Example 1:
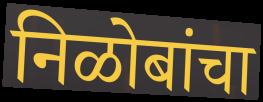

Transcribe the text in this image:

निळोबांचा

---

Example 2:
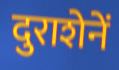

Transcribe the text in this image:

दुराशेनें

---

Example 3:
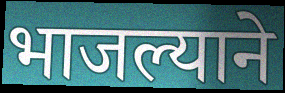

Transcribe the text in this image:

भाजल्याने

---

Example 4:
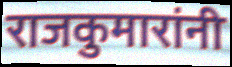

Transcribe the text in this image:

राजकुमारांनी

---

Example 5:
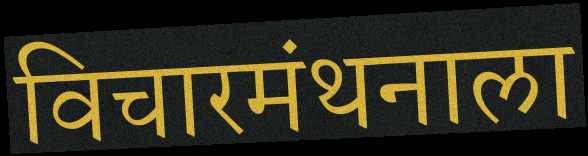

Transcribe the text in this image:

विचारमंथनाला